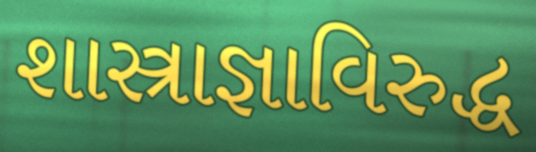
શાસ્ત્રાજ્ઞાવિરુદ્ધ